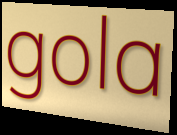
gola